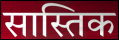
सास्तिक